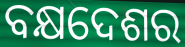
ବକ୍ଷଦେଶର